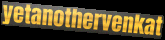
yetanothervenkat